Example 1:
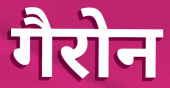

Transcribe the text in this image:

गैरोन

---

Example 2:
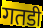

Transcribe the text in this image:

गतडी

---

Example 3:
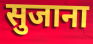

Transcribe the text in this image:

सुजाना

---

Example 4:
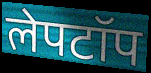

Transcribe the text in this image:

लेपटॉप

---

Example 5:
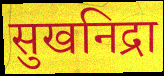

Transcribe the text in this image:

सुखनिद्रा